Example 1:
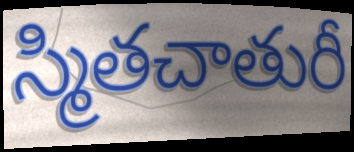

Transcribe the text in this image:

స్మితచాతురీ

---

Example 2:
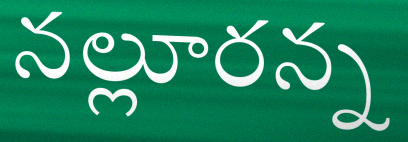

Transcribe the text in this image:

నల్లూరన్న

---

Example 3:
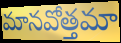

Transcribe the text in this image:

మానవోత్తమా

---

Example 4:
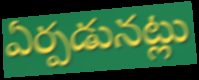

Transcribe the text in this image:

ఏర్పడునట్లు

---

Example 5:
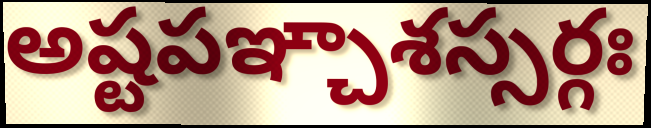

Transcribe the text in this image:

అష్టపఞ్చాశస్సర్గః